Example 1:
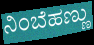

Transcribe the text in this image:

ನಿಂಬೆಹಣ್ಣು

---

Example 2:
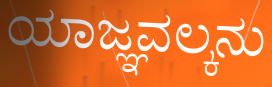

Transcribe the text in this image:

ಯಾಜ್ಞವಲ್ಕನು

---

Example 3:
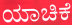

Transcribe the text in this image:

ಯಾಚಿಕೆ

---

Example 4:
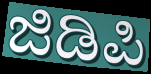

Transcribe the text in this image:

ಜಿಡಿಪಿ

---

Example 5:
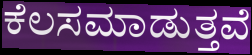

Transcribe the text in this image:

ಕೆಲಸಮಾಡುತ್ತವೆ